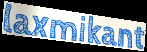
laxmikant